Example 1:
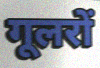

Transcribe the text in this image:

गूलरों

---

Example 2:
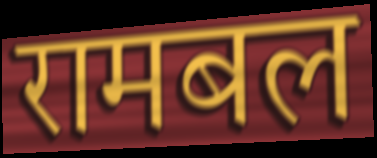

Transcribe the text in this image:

रामबल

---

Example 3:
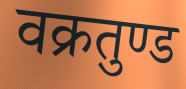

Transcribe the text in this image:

वक्रतुण्ड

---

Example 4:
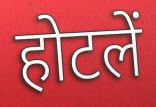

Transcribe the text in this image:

होटलें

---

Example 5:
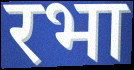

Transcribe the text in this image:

रभा